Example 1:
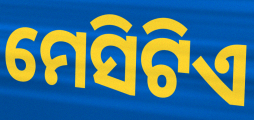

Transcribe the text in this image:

ମେସିଟିଏ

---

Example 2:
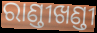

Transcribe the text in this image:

ରାଣ୍ଡୀଖଣ୍ଡୀ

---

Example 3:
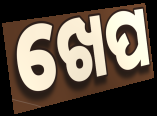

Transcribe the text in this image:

ଖେପ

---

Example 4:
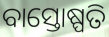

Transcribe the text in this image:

ବାସ୍ତୋଷ୍ପତି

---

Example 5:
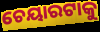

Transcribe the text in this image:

ଚେୟାରଟାକୁ